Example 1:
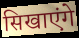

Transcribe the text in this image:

सिखाएंगे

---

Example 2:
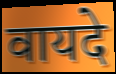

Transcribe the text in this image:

वायदे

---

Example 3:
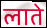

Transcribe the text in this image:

लाते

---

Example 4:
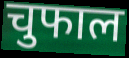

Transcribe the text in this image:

चुफाल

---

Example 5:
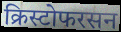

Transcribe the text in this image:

क्रिस्टोफरसन